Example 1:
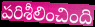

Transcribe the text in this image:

పరిశీలించింది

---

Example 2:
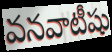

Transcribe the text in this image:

వనవాటీషు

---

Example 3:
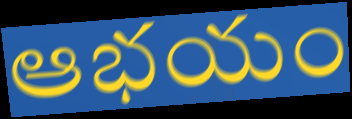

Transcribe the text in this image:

ఆభయం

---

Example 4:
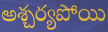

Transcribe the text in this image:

అశ్చర్యపోయి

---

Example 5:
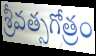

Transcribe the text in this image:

శ్రీవత్సగోత్రం